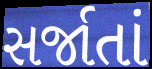
સર્જાતાં